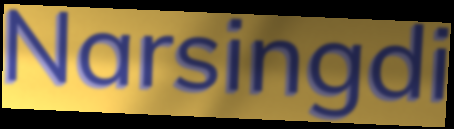
Narsingdi